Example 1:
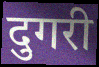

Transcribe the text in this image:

दुगरी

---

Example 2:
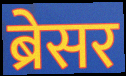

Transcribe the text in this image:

ब्रेसर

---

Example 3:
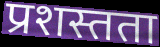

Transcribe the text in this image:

प्रशस्तता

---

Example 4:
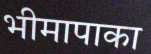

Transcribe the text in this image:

भीमापाका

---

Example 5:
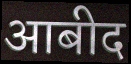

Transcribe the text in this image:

आबीद